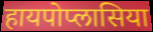
हायपोप्लासिया